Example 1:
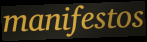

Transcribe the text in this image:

manifestos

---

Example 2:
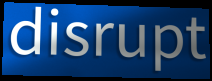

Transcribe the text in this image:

disrupt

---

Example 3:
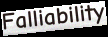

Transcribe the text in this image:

Falliability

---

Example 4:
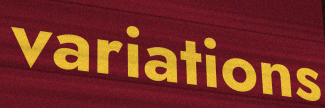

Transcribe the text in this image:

variations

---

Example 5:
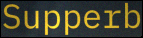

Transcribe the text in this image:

Supperb